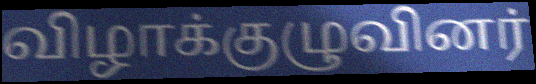
விழாக்குழுவினர்